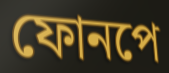
ফোনপে